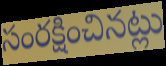
సంరక్షించినట్లు